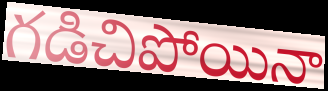
గడిచిపోయినా